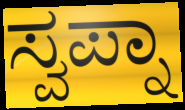
ಸ್ವಪ್ನಾ